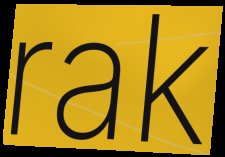
rak